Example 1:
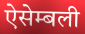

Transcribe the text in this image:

ऐसेम्बली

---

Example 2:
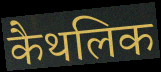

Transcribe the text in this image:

कैथलिक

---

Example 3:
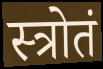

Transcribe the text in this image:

स्त्रोतं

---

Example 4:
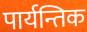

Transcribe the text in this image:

पार्यन्तिक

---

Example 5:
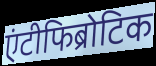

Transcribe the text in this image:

एंटीफिब्रोटिक